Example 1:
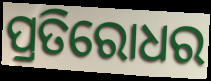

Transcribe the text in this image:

ପ୍ରତିରୋଧର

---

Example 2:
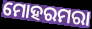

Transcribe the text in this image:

ମୋହରମରା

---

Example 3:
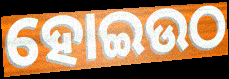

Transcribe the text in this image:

ହୋଇଉଠ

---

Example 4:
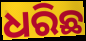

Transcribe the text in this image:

ଧରିଛ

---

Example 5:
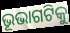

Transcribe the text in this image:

ଭୂଭାଗଟିକୁ